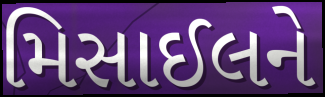
મિસાઈલને